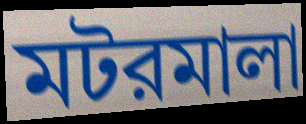
মটরমালা